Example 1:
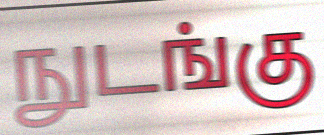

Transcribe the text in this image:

நுடங்கு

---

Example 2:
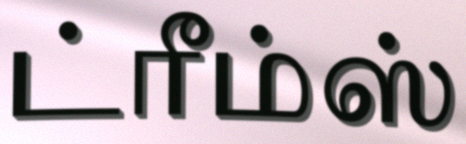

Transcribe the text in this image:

ட்ரீம்ஸ்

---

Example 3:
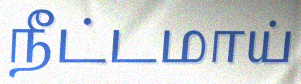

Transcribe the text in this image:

நீட்டமாய்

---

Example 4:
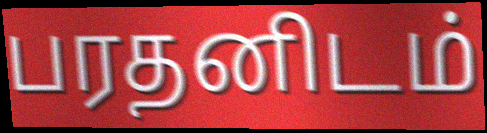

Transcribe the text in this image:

பரதனிடம்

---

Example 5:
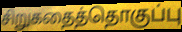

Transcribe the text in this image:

சிறுகதைத்தொகுப்பு